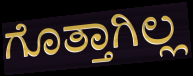
ಗೊತ್ತಾಗಿಲ್ಲ